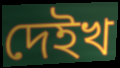
দেইখ